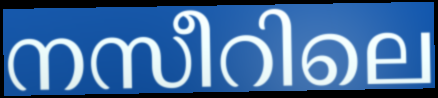
നസീറിലെ